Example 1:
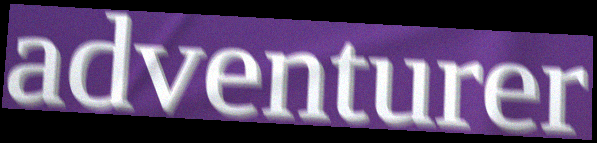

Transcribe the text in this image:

adventurer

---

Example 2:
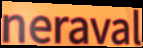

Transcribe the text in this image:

neraval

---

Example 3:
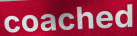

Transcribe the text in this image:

coached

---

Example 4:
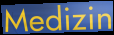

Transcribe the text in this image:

Medizin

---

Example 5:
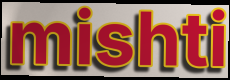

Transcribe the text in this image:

mishti